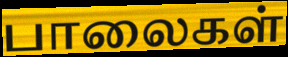
பாலைகள்